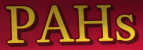
PAHs